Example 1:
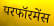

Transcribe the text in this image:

परफॉरमेंस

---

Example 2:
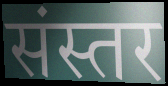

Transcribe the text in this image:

संस्तर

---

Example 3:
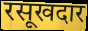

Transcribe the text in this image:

रसूखदार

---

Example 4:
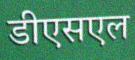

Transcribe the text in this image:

डीएसएल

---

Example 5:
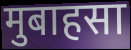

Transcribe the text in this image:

मुबाहसा